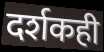
दर्शकही